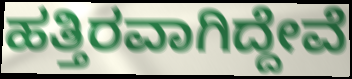
ಹತ್ತಿರವಾಗಿದ್ದೇವೆ